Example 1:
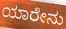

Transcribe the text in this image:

ಯಾರೇನು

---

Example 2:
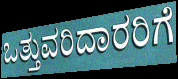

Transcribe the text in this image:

ಒತ್ತುವರಿದಾರರಿಗೆ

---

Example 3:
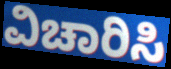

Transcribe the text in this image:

ವಿಚಾರಿಸಿ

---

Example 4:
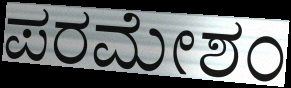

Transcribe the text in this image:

ಪರಮೇಶಂ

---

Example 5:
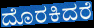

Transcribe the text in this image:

ದೊರಕಿದರೆ